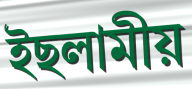
ইছলামীয়